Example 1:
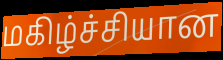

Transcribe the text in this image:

மகிழ்ச்சியான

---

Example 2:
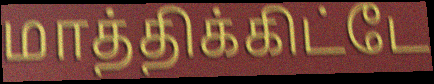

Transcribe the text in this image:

மாத்திக்கிட்டே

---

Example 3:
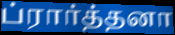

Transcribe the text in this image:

ப்ரார்த்தனா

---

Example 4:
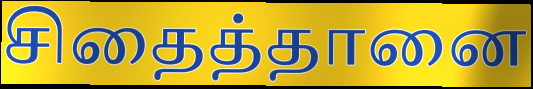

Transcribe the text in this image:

சிதைத்தானை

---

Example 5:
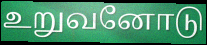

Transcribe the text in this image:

உறுவனோடு